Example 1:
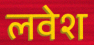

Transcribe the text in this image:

लवेश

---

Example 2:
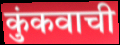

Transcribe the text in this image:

कुंकवाची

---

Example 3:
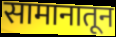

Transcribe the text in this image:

सामानातून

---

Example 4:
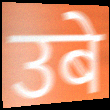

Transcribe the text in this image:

उबे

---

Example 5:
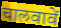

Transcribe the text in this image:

चालवावें